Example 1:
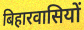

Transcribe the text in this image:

बिहारवासियों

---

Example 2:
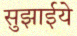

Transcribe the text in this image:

सुझाईये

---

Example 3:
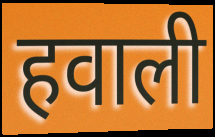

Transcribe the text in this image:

हवाली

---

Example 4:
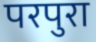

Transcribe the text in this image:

परपुरा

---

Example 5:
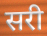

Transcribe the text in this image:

सरी